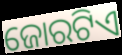
ଜୋରଟିଏ